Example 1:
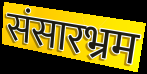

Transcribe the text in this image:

संसारभ्रम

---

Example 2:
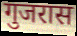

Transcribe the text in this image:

गुजरास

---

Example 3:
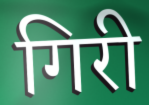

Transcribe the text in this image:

गिरी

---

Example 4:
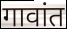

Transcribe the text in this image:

गावांत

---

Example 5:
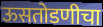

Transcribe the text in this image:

ऊसतोडणीचा